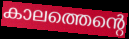
കാലത്തെന്റെ